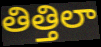
తిత్తిలా